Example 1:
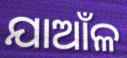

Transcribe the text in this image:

ଯାଆଁଳ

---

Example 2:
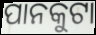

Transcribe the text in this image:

ପାନକୁଟା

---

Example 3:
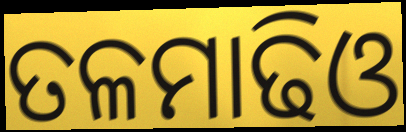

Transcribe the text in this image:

ତଳମାଢିଓ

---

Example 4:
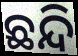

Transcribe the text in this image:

ଛନ୍ଦି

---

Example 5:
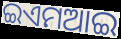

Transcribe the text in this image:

ଇଏମଆଇ